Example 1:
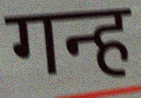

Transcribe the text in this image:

गन्ह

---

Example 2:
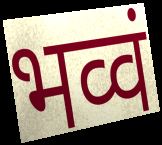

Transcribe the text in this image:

भव्वं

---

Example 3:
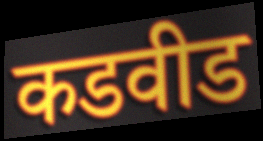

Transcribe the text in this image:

कडवीड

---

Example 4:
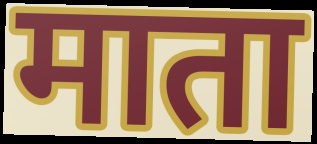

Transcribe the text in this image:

माता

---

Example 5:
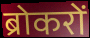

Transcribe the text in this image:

ब्रोकरों